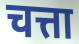
चत्ता